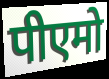
पीएमो